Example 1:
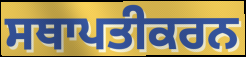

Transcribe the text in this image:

ਸਥਾਪਤੀਕਰਨ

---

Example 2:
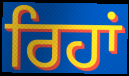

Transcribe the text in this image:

ਰਿਹਾਂ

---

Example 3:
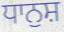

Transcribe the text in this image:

ਧਾਨੁਸ਼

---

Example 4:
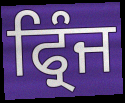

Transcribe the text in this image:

ਫ੍ਰਿੰਜ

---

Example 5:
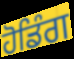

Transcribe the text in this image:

ਹੋਡਿੰਗ